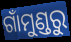
ଗାଁମୁଣ୍ଡରୁ